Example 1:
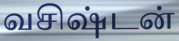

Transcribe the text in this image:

வசிஷ்டன்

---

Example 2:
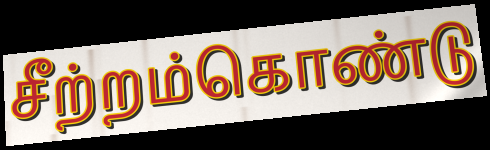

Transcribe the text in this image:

சீற்றம்கொண்டு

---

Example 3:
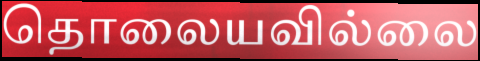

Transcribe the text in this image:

தொலையவில்லை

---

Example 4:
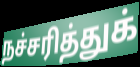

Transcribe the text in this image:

நச்சரித்துக்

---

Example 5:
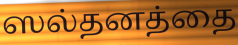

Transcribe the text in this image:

ஸல்தனத்தை